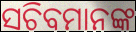
ସଚିବମାନଙ୍କ